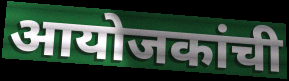
आयोजकांची